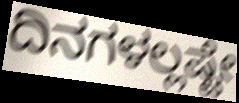
ದಿನಗಳಲ್ಲಷ್ಟೇ